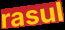
rasul